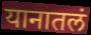
यानातलं